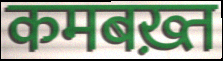
कमबख़्त